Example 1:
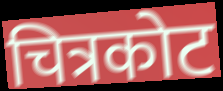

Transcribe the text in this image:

चित्रकोट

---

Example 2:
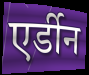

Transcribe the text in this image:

एर्डीन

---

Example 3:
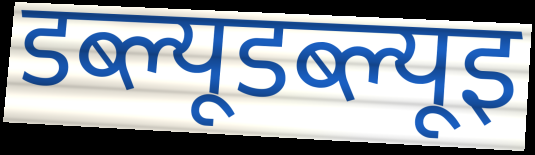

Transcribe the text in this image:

डब्ल्यूडब्ल्यूइ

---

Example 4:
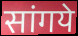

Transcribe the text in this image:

सांगये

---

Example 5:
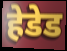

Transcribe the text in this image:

हेडेड